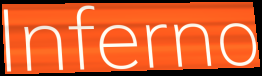
Inferno